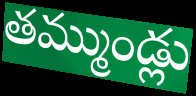
తమ్ముండ్లు